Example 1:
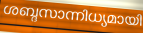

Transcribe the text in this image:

ശബ്ദസാന്നിധ്യമായി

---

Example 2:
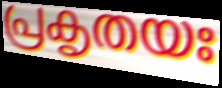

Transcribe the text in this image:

പ്രകൃതയഃ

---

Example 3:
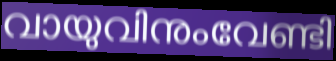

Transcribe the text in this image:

വായുവിനുംവേണ്ടി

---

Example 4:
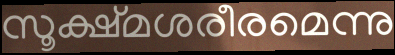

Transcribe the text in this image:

സൂക്ഷ്മശരീരമെന്നു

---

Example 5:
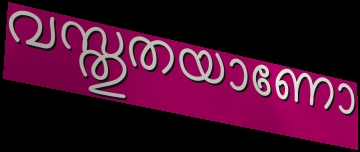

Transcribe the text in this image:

വസ്തുതയാണോ